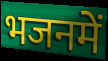
भजनमें